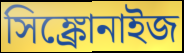
সিঙ্ক্রোনাইজ